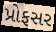
પ્રોફસર